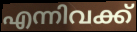
എന്നിവക്ക്